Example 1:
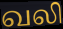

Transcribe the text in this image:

வலி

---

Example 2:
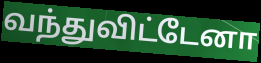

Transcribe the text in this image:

வந்துவிட்டேனா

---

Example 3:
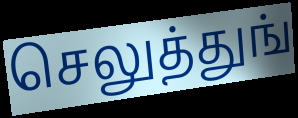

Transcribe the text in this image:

செலுத்துங்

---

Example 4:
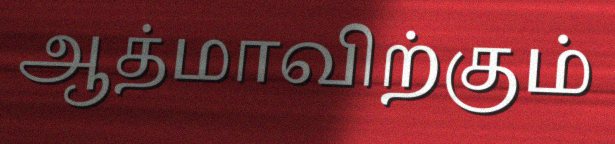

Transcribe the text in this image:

ஆத்மாவிற்கும்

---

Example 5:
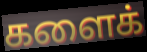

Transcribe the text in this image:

களைக்